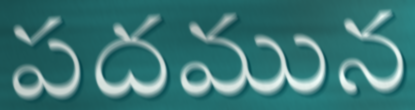
పదమున